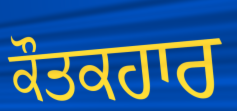
ਕੌਤਕਹਾਰ